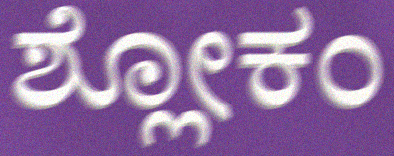
ಶ್ಲೋಕಂ